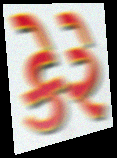
કેરે